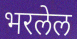
भरलेल